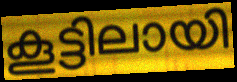
കൂട്ടിലായി